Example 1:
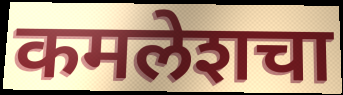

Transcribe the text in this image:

कमलेशचा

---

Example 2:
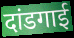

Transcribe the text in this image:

दांडगाई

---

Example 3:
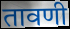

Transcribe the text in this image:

तावणी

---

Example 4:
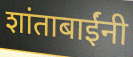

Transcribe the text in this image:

शांताबाईंनी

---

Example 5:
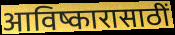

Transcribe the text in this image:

आविष्कारासाठीं